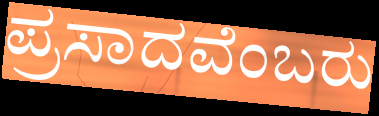
ಪ್ರಸಾದವೆಂಬರು